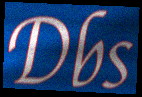
Dbs